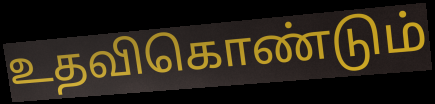
உதவிகொண்டும்